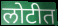
लोटीत